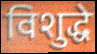
विशुद्धे